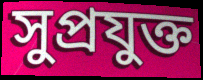
সুপ্রযুক্ত